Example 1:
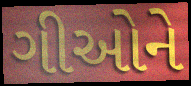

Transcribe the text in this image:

ગીઓને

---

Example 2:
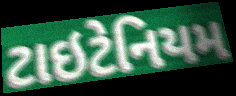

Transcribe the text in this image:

ટાઇટેનિયમ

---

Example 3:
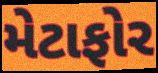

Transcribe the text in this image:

મેટાફોર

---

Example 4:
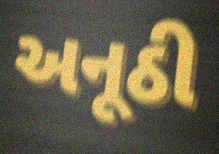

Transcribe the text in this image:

અનૂઠી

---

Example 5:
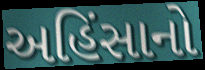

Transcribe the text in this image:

અહિંસાનો